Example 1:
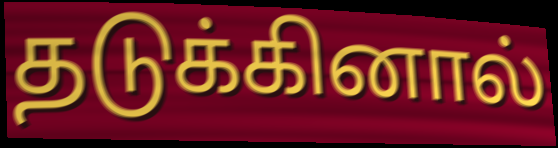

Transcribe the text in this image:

தடுக்கினால்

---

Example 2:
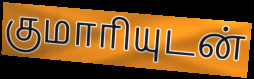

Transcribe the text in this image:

குமாரியுடன்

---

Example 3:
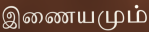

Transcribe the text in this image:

இணையமும்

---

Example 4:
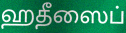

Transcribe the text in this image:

ஹதீஸைப்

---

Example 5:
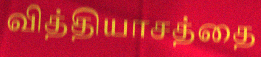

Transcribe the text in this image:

வித்தியாசத்தை